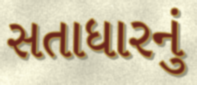
સતાધારનું